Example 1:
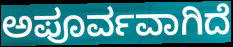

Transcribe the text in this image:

ಅಪೂರ್ವವಾಗಿದೆ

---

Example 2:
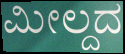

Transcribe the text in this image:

ಮೀಲ್ದದ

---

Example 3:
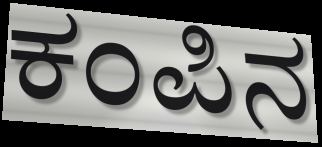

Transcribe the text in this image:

ಕಂಪಿನ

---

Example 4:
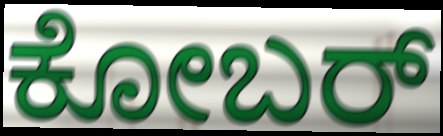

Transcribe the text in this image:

ಕೋಬರ್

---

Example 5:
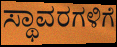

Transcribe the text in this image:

ಸ್ಥಾವರಗಳಿಗೆ